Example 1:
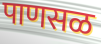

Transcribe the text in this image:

पाणसळ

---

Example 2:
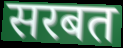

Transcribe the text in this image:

सरबत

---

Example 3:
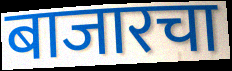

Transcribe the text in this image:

बाजारचा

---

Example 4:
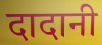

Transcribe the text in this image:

दादानी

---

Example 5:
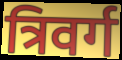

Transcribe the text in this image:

त्रिवर्ग